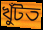
খুঁটত